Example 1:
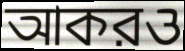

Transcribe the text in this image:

আকরও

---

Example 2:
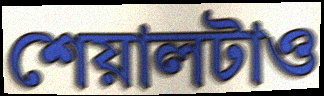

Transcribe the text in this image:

শেয়ালটাও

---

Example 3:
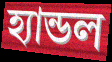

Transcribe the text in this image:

হ্যান্ডল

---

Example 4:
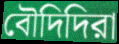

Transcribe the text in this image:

বৌদিদিরা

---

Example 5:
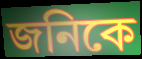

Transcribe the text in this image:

জনিকে